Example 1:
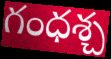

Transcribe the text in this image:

గంధశ్చ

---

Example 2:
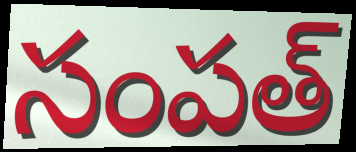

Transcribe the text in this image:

సంపత్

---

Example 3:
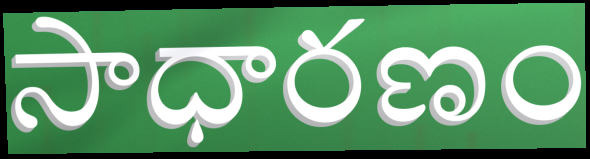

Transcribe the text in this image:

సాధారణం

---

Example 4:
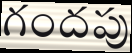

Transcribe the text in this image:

గందపు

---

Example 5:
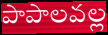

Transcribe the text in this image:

పాపాలవల్ల